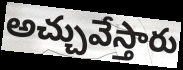
అచ్చువేస్తారు